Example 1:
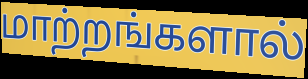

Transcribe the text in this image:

மாற்றங்களால்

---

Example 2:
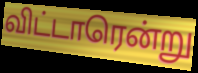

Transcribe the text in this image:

விட்டாரென்று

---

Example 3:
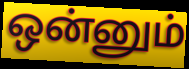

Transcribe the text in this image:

ஒன்னும்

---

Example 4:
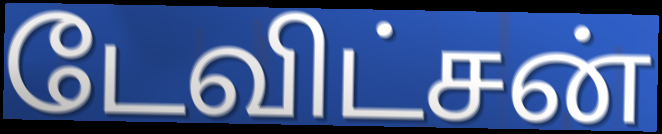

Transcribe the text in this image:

டேவிட்சன்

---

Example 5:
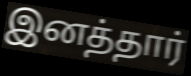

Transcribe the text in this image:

இனத்தார்